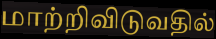
மாற்றிவிடுவதில்